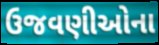
ઉજવણીઓના